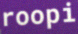
roopi